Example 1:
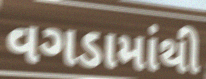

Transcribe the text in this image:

વગડામાંથી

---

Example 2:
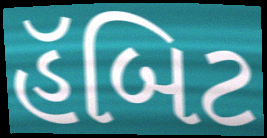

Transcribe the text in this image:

હૅબિટ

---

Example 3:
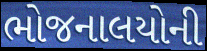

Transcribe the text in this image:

ભોજનાલયોની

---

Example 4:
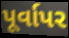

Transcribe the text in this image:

પૂર્વાપર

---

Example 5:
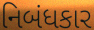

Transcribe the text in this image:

નિબંધકાર